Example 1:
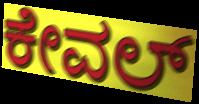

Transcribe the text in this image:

ಕೇವಲ್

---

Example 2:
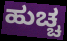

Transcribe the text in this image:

ಹುಚ್ಚ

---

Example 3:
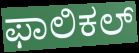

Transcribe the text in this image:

ಫಾಲಿಕಲ್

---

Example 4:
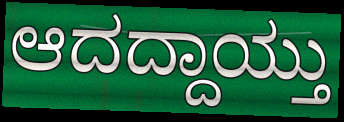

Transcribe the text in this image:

ಆದದ್ದಾಯ್ತು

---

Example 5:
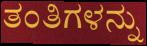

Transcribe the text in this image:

ತಂತಿಗಳನ್ನು